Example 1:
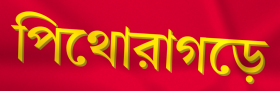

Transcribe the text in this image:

পিথোরাগড়ে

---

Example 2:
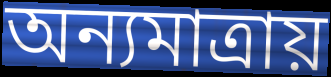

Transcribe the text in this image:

অন্যমাত্রায়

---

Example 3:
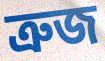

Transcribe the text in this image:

ত্রুজ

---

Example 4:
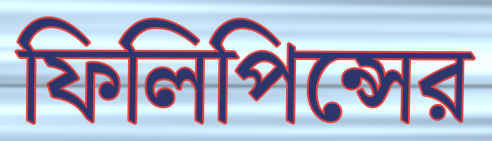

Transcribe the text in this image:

ফিলিপিন্সের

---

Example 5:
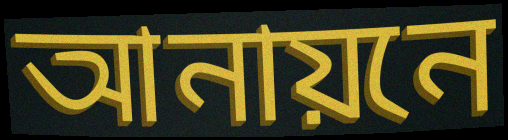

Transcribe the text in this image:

আনায়নে